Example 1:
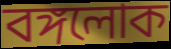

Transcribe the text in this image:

বঙ্গলোক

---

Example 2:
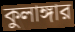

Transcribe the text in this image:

কুলাঙ্গার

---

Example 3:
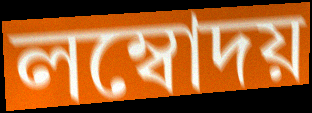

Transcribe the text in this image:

লম্বোদয়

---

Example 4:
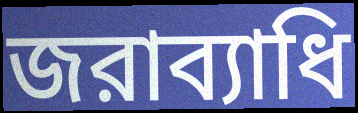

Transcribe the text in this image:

জরাব্যাধি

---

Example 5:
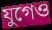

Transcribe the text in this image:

যুগেও